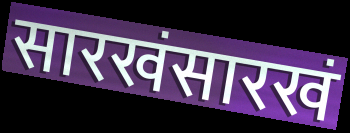
सारखंसारखं